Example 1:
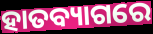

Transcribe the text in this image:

ହାତବ୍ୟାଗରେ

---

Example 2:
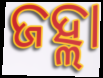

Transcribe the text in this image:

ଜହ୍ଲା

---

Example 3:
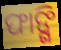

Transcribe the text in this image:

ଫାଙ୍ଗି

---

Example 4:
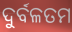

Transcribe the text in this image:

ଦୁର୍ବଳତମ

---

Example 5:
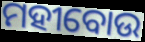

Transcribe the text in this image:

ମହୀବୋଉ